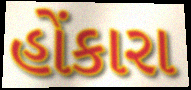
હોંકારા